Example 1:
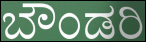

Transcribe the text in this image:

ಬೌಂಡರಿ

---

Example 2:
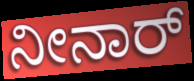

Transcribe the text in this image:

ನೀನಾರ್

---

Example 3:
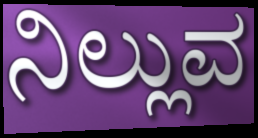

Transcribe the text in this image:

ನಿಲ್ಲುವ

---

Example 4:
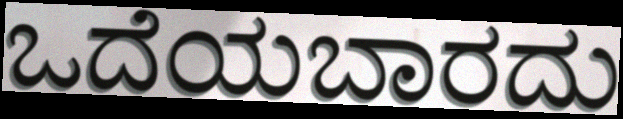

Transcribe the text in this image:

ಒದೆಯಬಾರದು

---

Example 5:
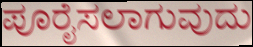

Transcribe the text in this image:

ಪೂರೈಸಲಾಗುವುದು